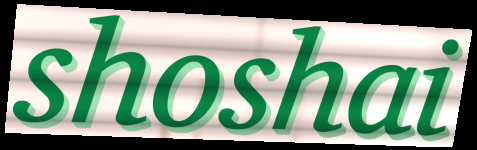
shoshai